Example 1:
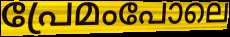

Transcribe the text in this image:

പ്രേമംപോലെ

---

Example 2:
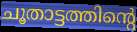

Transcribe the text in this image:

ചൂതാട്ടത്തിന്റെ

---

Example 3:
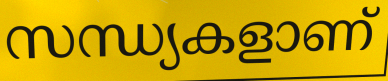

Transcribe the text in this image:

സന്ധ്യകളാണ്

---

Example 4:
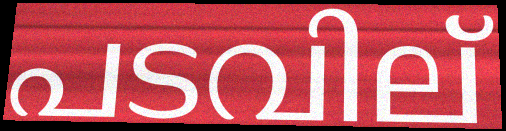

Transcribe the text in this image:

പടവില്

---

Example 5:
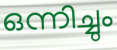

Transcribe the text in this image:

ഒന്നിച്ചും